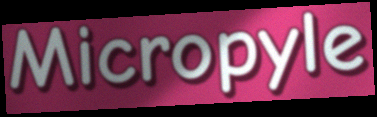
Micropyle